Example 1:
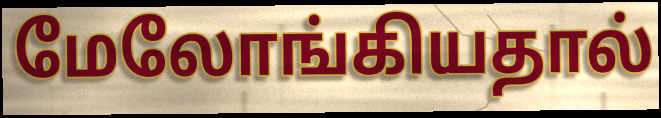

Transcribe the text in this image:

மேலோங்கியதால்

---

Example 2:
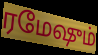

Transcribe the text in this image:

ரமேஷும்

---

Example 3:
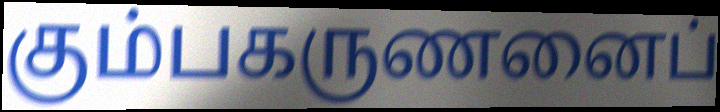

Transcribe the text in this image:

கும்பகருணனைப்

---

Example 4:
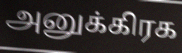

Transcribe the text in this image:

அனுக்கிரக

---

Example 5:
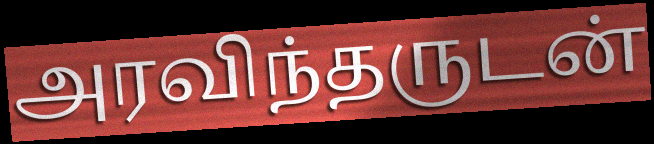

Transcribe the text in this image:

அரவிந்தருடன்